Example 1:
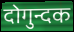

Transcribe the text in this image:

दोगुन्दक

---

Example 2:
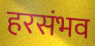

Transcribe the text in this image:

हरसंभव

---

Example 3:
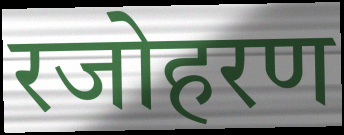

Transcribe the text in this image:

रजोहरण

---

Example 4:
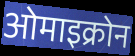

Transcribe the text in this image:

ओमाइक्रोन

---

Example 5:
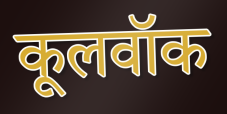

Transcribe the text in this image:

कूलवॉक